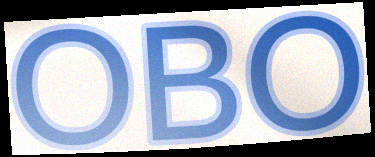
OBO